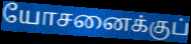
யோசனைக்குப்